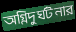
অগ্নিদুর্ঘটনার